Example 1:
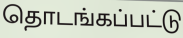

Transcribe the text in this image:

தொடங்கப்பட்டு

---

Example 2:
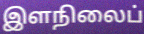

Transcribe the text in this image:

இளநிலைப்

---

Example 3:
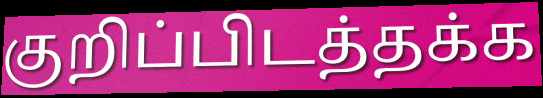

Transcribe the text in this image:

குறிப்பிடத்தக்க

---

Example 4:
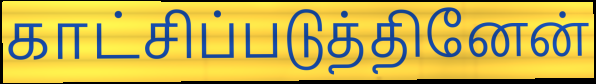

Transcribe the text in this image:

காட்சிப்படுத்தினேன்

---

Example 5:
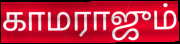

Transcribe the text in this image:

காமராஜும்